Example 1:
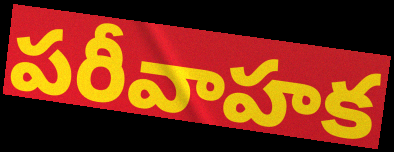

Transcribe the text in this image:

పరీవాహక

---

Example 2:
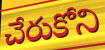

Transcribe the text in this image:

చేరుకోని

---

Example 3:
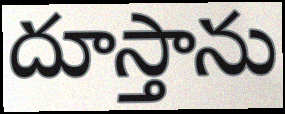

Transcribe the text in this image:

దూస్తాను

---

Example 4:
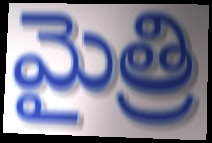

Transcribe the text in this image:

మైత్రి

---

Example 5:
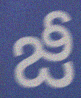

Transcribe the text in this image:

జీ